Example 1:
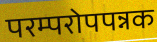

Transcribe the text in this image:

परम्परोपपन्नक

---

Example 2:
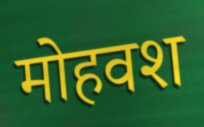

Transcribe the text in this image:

मोहवश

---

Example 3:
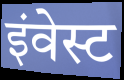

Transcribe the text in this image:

इंवेस्ट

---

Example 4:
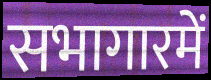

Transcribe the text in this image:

सभागारमें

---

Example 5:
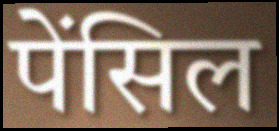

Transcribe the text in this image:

पेंसिल